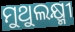
ମୁଥୁଲକ୍ଷ୍ମୀ